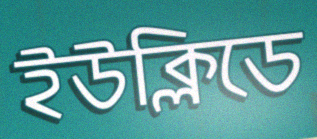
ইউক্লিডে